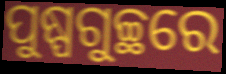
ପୁଷ୍ପଗୁଚ୍ଛରେ